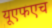
यूएफएच